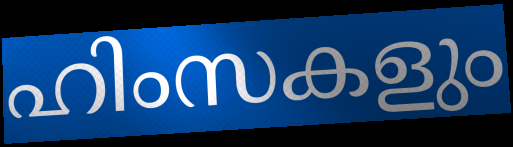
ഹിംസകളും